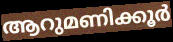
ആറുമണിക്കൂർ